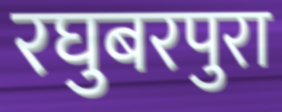
रघुबरपुरा